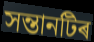
সন্তানটিৰ